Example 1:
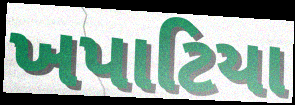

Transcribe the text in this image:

ખપાટિયા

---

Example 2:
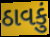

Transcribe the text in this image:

ઠાવકું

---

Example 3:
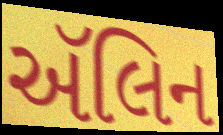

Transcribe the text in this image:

ઍલિન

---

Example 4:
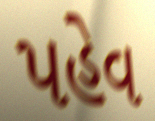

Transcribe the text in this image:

પહેવ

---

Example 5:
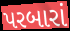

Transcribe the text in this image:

પરબારાં